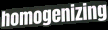
homogenizing